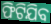
ଫିଟିଯିବ